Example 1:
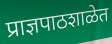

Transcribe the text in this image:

प्राज्ञपाठशाळेत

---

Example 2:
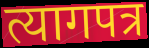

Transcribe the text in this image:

त्यागपत्र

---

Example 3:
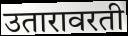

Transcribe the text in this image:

उतारावरती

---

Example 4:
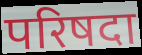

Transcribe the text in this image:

परिषदा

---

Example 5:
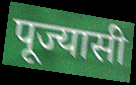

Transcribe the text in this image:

पूज्यासी